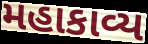
મહાકાવ્ય